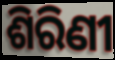
ଶିରିଣୀ